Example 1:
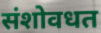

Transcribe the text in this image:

संशोवधत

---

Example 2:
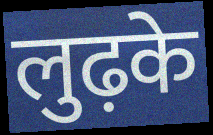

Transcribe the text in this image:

लुढ़के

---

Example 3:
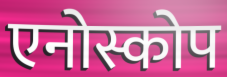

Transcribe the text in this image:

एनोस्कोप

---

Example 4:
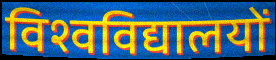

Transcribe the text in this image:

विश्वविद्यालयों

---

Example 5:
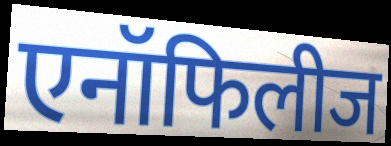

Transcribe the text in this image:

एनॉफिलीज